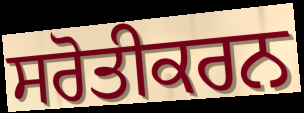
ਸਰੋਤੀਕਰਨ